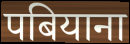
पबियाना